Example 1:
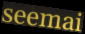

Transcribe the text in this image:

seemai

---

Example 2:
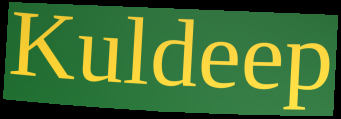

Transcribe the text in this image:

Kuldeep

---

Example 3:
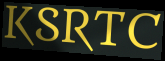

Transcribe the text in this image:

KSRTC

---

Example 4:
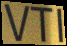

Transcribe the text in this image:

VTI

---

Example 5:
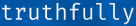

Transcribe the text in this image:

truthfully